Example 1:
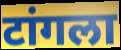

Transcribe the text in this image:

टांगला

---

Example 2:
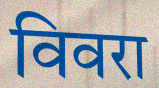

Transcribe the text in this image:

विवरा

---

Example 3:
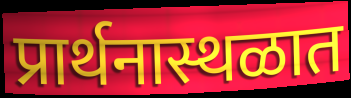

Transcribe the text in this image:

प्रार्थनास्थळात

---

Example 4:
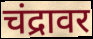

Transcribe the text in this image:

चंद्रावर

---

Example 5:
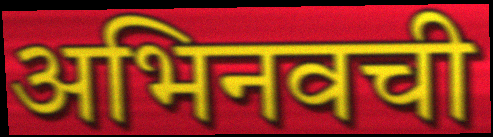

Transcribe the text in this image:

अभिनवची